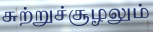
சுற்றுச்சூழலும்